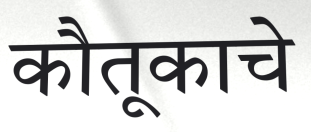
कौतूकाचे